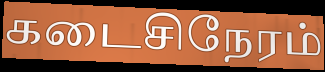
கடைசிநேரம்